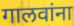
गालवांना